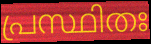
പ്രസ്ഥിതഃ